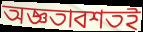
অজ্ঞতাবশতই